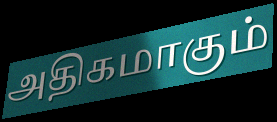
அதிகமாகும்